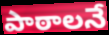
పాఠాలనే